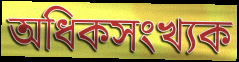
অধিকসংখ্যক